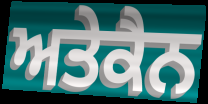
ਅਤੇਕੈਨ